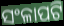
ସଂଳାପଟି